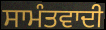
ਸਾਮੰਤਵਾਦੀ